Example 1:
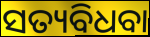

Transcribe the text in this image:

ସତ୍ୟବିଧବା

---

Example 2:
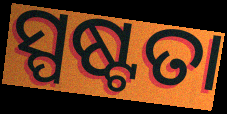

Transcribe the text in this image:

ସ୍ପଷ୍ଟତା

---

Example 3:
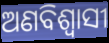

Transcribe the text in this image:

ଅଣବିଶ୍ୱାସୀ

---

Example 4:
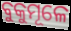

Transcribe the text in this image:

ବୁକୁମୂଳେ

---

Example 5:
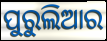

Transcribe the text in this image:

ପୁରୁଲିଆର